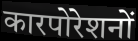
कारपोरेशनों